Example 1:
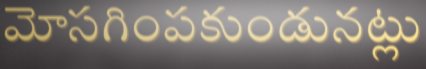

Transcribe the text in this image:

మోసగింపకుండునట్లు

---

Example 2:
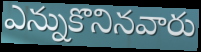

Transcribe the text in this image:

ఎన్నుకొనినవారు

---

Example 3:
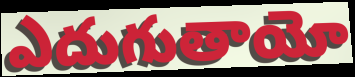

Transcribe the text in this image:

ఎదుగుతాయో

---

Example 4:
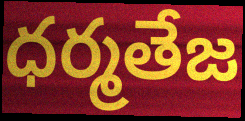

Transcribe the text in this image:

ధర్మతేజ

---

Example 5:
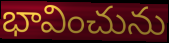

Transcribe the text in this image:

భావించును